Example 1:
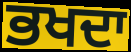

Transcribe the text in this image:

ਭਖਦਾ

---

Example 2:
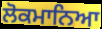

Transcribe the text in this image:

ਲੋਕਮਾਨਿਆ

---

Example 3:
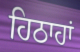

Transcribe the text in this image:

ਹਿਠਾਹਾਂ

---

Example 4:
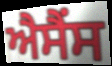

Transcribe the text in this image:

ਐਸੈਂਸ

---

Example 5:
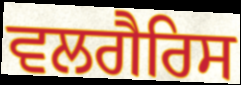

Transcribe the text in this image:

ਵਲਗੈਰਿਸ